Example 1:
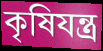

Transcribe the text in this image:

কৃষিযন্ত্র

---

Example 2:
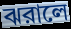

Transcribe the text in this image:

ঝরালে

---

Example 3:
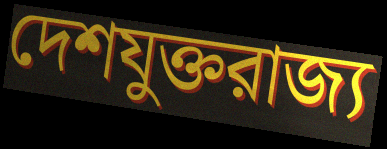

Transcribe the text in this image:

দেশযুক্তরাজ্য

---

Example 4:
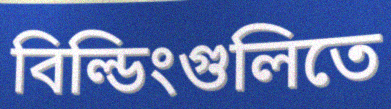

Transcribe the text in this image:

বিল্ডিংগুলিতে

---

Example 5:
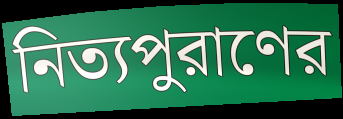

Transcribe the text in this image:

নিত্যপুরাণের